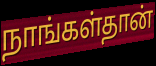
நாங்கள்தான்